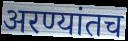
अरण्यांतच